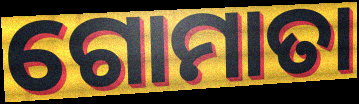
ଗୋମାତା